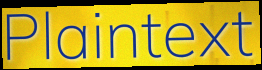
Plaintext